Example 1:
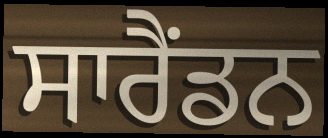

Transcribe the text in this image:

ਸਾਰੈਂਡਨ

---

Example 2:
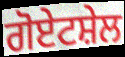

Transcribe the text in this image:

ਗੋਏਟਸ਼ੇਲ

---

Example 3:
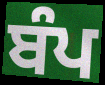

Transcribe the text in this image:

ਬੰਪ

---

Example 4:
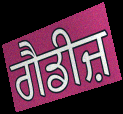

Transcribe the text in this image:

ਗੈਡੀਜ਼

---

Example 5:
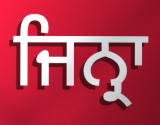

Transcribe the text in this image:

ਜਿਨ੍ਰਾ